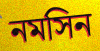
নমসিন